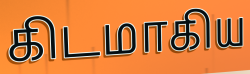
கிடமாகிய